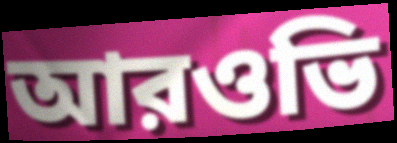
আরওভি